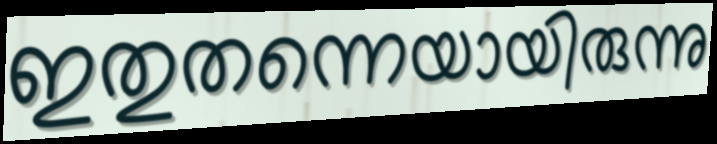
ഇതുതന്നെയായിരുന്നു